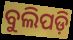
ବୁଲିପଡ଼ି